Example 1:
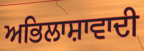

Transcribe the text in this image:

ਅਭਿਲਾਸ਼ਾਵਾਦੀ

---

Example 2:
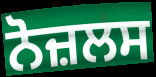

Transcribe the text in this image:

ਨੋਜ਼ਲਸ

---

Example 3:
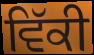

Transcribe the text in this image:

ਵਿੱਕੀ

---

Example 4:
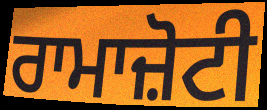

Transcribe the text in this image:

ਰਾਮਾਜ਼ੋਟੀ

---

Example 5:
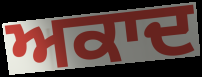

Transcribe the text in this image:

ਅਕਾਦ